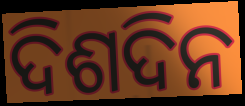
ଦିଶଦିନ